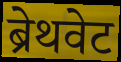
ब्रेथवेट